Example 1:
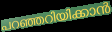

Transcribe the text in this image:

പറഞ്ഞറിയിക്കാൻ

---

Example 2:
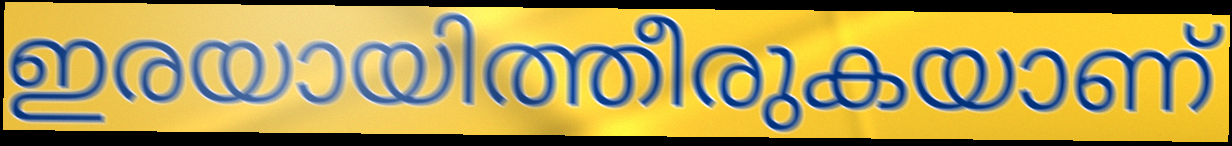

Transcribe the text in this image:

ഇരയായിത്തീരുകയാണ്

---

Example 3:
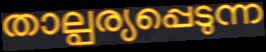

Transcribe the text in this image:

താല്പര്യപ്പെടുന്ന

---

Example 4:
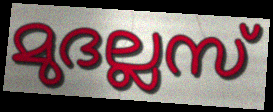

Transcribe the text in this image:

മുദല്ലസ്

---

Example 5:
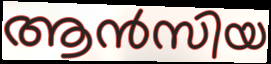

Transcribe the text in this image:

ആൻസിയ